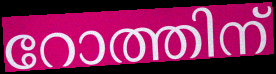
റോത്തിന്